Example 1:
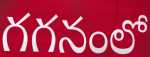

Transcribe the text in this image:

గగనంలో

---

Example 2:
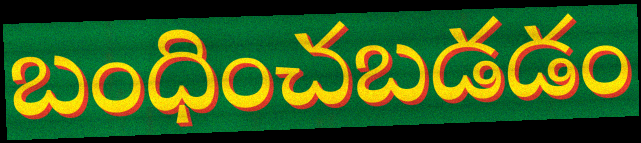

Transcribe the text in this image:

బంధించబడడం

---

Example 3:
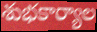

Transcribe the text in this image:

శుభకార్యాల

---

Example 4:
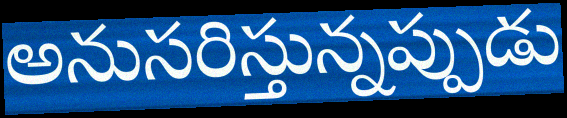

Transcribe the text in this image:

అనుసరిస్తున్నప్పుడు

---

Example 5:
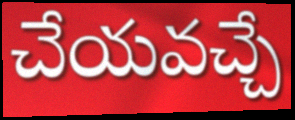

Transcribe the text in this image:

చేయవచ్చే